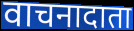
वाचनादाता